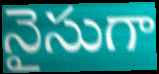
నైసుగా